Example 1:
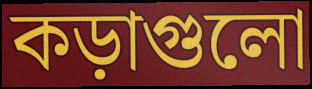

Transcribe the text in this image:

কড়াগুলো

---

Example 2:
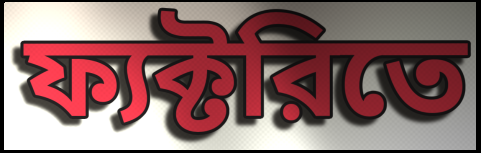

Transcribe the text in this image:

ফ্যক্টরিতে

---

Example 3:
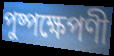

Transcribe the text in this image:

পুষ্পক্ষেপণী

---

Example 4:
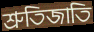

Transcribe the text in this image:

শ্রুতিজাতি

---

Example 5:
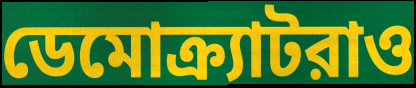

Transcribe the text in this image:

ডেমোক্র্যাটরাও